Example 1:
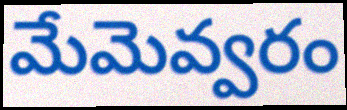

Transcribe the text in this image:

మేమెవ్వరం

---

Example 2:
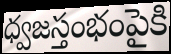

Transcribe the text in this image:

ధ్వజస్తంభంపైకి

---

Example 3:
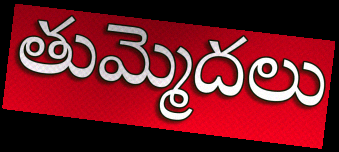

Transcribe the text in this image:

తుమ్మెదలు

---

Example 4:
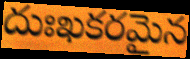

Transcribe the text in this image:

దుఃఖకరమైన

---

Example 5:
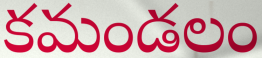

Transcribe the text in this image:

కమండలం